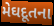
મેઘદૂતના